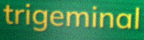
trigeminal